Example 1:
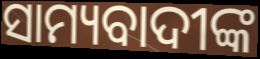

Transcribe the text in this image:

ସାମ୍ୟବାଦୀଙ୍କ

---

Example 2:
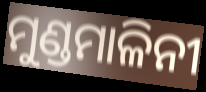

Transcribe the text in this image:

ମୁଣ୍ଡମାଳିନୀ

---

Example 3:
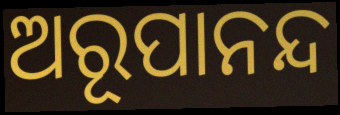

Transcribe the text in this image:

ଅରୂପାନନ୍ଦ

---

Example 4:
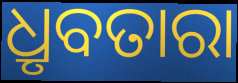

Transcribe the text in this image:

ଧ୍ରୃବତାରା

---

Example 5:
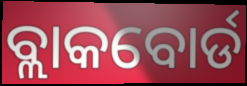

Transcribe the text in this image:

ବ୍ଲାକବୋର୍ଡ